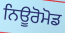
ਨਿਊਰੋਮੋਡ